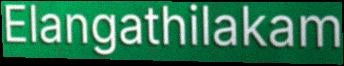
Elangathilakam